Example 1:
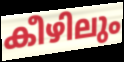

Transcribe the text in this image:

കീഴിലും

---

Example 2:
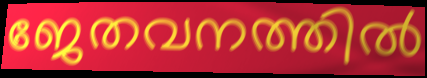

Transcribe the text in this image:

ജേതവനത്തിൽ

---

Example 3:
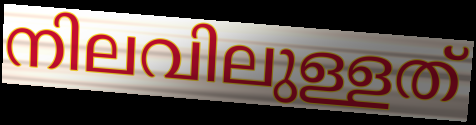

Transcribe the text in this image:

നിലവിലുള്ളത്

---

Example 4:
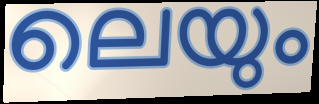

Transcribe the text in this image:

ലെയും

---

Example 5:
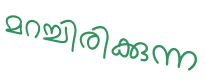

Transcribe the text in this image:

മറച്ചിരിക്കുന്ന